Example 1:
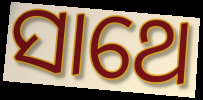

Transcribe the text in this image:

ସାଥେ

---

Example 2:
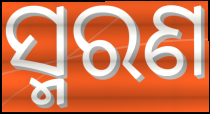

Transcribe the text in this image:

ସ୍ମରଣ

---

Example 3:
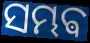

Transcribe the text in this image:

ସମ୍ଭଵ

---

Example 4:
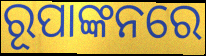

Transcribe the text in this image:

ରୂପାଙ୍କନରେ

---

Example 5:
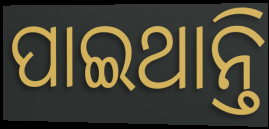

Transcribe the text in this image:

ପାଇଥାନ୍ତି